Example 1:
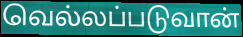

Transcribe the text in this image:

வெல்லப்படுவான்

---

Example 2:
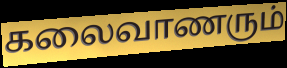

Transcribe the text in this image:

கலைவாணரும்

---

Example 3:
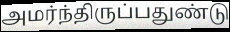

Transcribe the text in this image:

அமர்ந்திருப்பதுண்டு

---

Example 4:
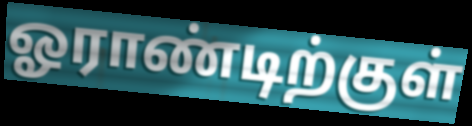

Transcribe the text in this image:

ஓராண்டிற்குள்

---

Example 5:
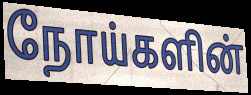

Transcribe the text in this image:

நோய்களின்